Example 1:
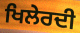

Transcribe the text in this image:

ਖਿਲੇਰਦੀ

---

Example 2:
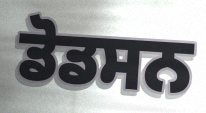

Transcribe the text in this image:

ਡੋਡਸਨ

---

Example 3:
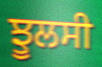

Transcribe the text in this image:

ਝੂਲਸੀ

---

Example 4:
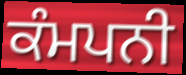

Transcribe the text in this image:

ਕੰਮਪਨੀ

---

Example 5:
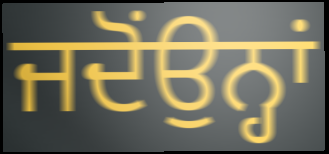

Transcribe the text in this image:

ਜਦੋਂਉਨ੍ਹਾਂ